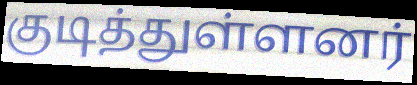
குடித்துள்ளனர்